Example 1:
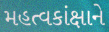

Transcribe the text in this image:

મહત્વકાંક્ષાને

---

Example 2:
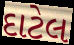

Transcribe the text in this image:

દાટેલ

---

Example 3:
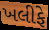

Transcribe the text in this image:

ખલીફે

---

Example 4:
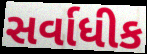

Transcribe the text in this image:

સર્વાધીક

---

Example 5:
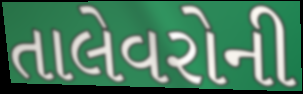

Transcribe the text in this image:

તાલેવરોની